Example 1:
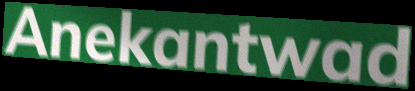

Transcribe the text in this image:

Anekantwad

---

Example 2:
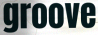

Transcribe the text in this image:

groove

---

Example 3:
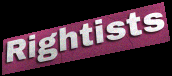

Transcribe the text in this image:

Rightists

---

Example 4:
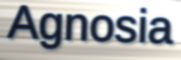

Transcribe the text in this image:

Agnosia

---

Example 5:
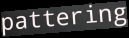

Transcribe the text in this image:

pattering